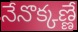
నేనొక్కణ్ణే